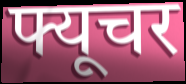
फ्यूचर